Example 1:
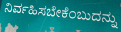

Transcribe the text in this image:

ನಿರ್ವಹಿಸಬೇಕೆಂಬುದನ್ನು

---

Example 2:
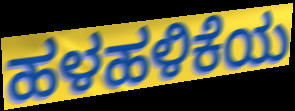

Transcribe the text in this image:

ಹಳಹಳಿಕೆಯ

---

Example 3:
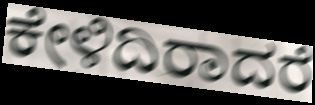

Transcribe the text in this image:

ಕೇಳಿದಿರಾದರೆ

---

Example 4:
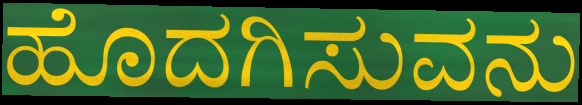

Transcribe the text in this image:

ಹೊದಗಿಸುವನು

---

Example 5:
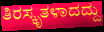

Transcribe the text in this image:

ತಿರಸ್ಕೃತಳಾದದ್ದು